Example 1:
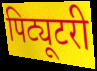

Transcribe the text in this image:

पिट्यूटरी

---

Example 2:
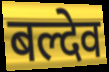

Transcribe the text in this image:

बल्देव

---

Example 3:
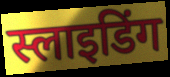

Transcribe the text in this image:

स्लाइडिंग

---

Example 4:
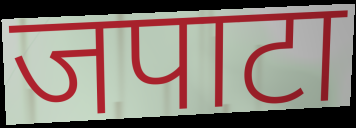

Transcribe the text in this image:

जपाटा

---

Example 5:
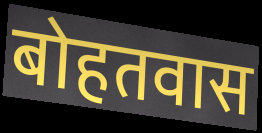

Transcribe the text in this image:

बोहतवास